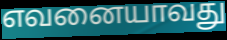
எவனையாவது